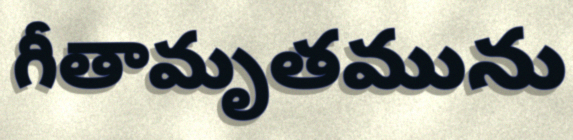
గీతామృతమును